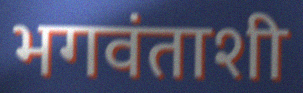
भगवंताशी